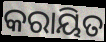
କରାୟିତ